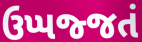
ઉપ્પજ્જતં